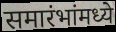
समारंभांमध्ये